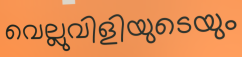
വെല്ലുവിളിയുടെയും